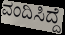
ವಂದಿಸಿದ್ದೆ